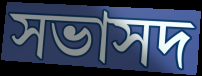
সভাসদ